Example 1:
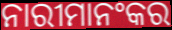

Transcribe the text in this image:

ନାରୀମାନଂକର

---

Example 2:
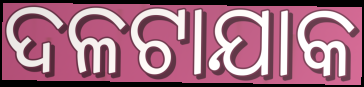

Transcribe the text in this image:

ଦଳଟାଯାକ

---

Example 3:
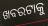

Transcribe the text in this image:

ଖବରଟାକୁ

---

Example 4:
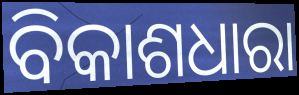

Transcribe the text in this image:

ବିକାଶଧାରା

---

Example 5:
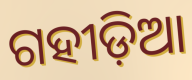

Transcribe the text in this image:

ଗହୀଡ଼ିଆ